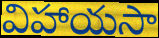
విహాయసా